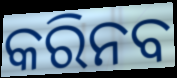
କରିନବ